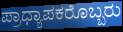
ಪ್ರಾಧ್ಯಾಪಕರೊಬ್ಬರು